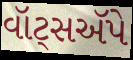
વૉટ્સઍપે